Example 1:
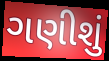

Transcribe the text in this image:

ગણીશું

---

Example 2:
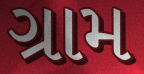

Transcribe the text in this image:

ગ્રામ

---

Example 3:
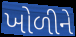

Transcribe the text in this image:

ખોળીને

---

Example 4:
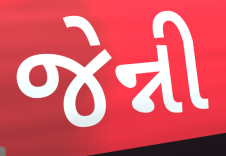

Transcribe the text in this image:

જેન્ની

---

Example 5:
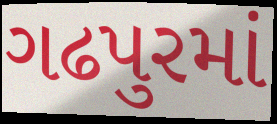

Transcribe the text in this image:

ગઢપુરમાં